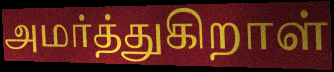
அமர்த்துகிறாள்